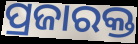
ପ୍ରଜାରକ୍ତ